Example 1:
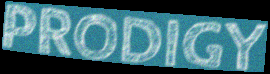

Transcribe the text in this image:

PRODIGY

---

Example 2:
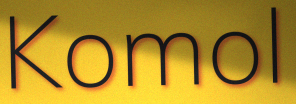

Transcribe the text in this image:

Komol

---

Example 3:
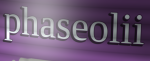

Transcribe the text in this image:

phaseolii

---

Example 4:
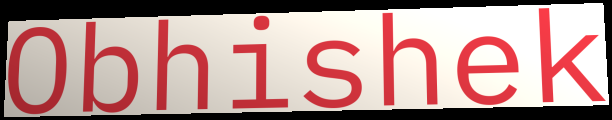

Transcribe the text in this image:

Obhishek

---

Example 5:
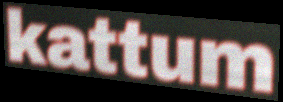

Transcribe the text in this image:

kattum